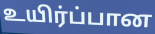
உயிர்ப்பான